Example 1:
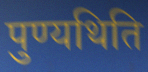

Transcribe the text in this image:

पुण्यथिति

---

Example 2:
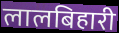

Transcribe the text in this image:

लालबिहारी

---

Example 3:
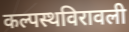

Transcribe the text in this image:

कल्पस्थविरावली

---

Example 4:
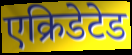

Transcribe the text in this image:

एक्रिडेटेड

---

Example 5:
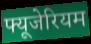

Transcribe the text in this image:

फ्यूजेरियम